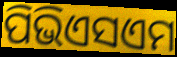
ପିଭିଏସଏମ